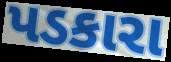
પડકારા